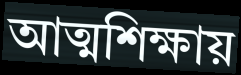
আত্মশিক্ষায়